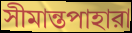
সীমান্তপাহারা